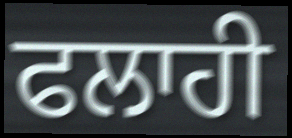
ਫਲਾਹੀ